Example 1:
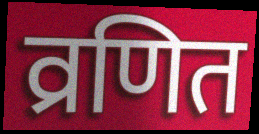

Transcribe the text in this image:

व्रणित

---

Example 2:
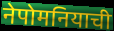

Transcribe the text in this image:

नेपोमनियाची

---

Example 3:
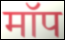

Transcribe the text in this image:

मॉप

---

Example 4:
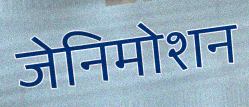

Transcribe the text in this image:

जेनिमोशन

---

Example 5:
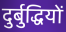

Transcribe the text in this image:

दुर्बुद्धियों